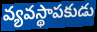
వ్యవస్థాపకుడు